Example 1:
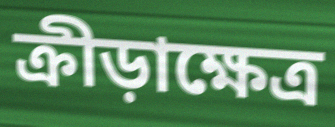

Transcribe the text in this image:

ক্রীড়াক্ষেত্র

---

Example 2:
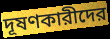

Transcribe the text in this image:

দূষণকারীদের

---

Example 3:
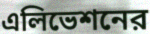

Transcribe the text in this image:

এলিভেশনের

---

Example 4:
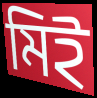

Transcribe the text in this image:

মিই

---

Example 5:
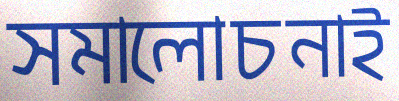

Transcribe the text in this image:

সমালোচনাই